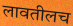
लावतीलच